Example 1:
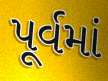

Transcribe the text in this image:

પૂર્વમાં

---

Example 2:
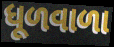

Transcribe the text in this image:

ધૂળવાળા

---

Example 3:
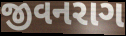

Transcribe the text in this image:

જીવનરાગ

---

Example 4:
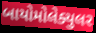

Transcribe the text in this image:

બાયોમોલેક્યુલર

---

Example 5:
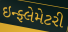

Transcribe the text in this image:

ઇન્ફ્લેમેટરી